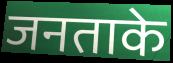
जनताके